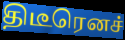
திடீரெனச்